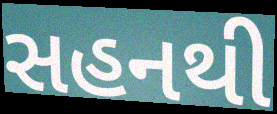
સહનથી